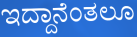
ಇದ್ದಾನೆಂತಲೂ